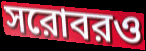
সরোবরও